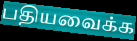
பதியவைக்க